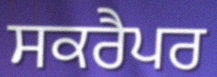
ਸਕਰੈਪਰ